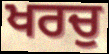
ਖਰਚੁ